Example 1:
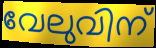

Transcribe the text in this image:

വേലുവിന്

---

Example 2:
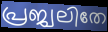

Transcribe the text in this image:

പ്രജ്വലിതേ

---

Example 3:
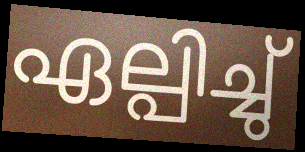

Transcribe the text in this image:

ഏല്പിച്ചു്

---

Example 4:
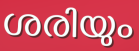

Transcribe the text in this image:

ശരിയും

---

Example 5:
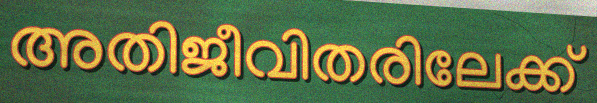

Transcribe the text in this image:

അതിജീവിതരിലേക്ക്